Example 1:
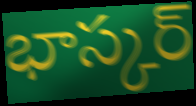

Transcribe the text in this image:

భాస్కర్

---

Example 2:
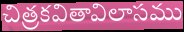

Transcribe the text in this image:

చిత్రకవితావిలాసము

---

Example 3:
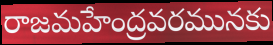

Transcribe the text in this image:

రాజమహేంద్రవరమునకు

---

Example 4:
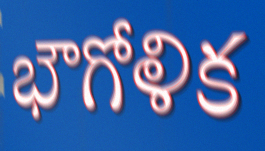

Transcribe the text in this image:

భౌగోళిక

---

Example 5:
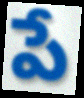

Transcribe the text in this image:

పే